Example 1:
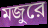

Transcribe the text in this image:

মজুরে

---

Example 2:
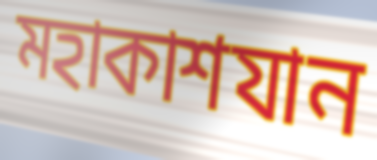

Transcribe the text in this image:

মহাকাশযান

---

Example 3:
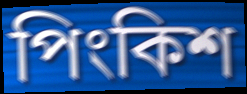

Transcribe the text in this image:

পিংকিশ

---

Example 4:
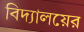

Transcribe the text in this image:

বিদ্যালয়ের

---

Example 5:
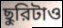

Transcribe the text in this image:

ছুরিটাও